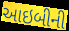
આઇબીની